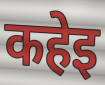
कहेइ